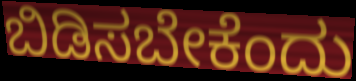
ಬಿಡಿಸಬೇಕೆಂದು